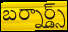
బర్నార్డ్స్